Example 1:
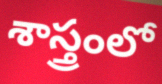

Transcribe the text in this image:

శాస్త్రంలో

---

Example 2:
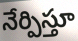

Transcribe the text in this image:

నేర్పిస్తూ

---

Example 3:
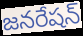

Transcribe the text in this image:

జనరేషన్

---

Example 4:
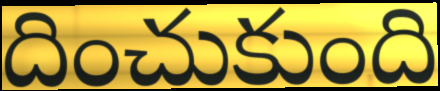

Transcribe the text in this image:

దించుకుంది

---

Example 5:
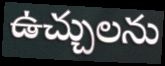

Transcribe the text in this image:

ఉచ్చులను